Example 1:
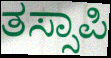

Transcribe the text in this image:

ತಸ್ಸಾಪಿ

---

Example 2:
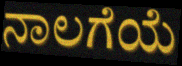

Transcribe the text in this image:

ನಾಲಗೆಯೆ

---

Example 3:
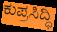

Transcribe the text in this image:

ಕುಪ್ರಸಿದ್ಧಿ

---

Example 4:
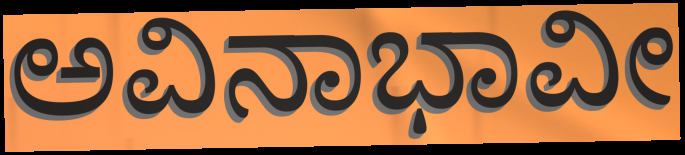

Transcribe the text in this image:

ಅವಿನಾಭಾವೀ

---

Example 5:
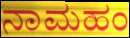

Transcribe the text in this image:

ನಾಮಹಂ